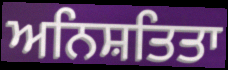
ਅਨਿਸ਼ਤਿਤਾ